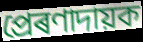
প্ৰেৰণাদায়ক